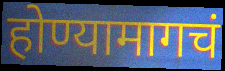
होण्यामागचं